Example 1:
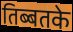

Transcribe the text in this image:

तिब्बतके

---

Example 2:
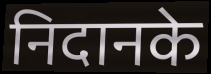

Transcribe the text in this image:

निदानके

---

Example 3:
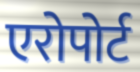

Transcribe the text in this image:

एरोपोर्ट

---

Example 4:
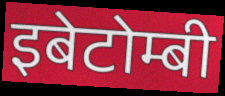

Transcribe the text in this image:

इबेटोम्बी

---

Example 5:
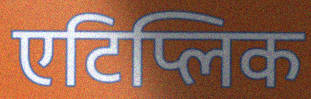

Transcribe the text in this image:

एटिप्लिक